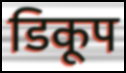
डिकूप